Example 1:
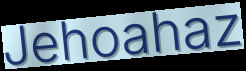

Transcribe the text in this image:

Jehoahaz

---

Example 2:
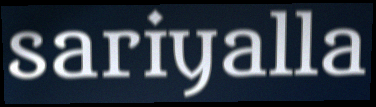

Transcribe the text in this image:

sariyalla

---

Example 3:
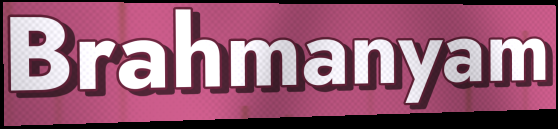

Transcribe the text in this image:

Brahmanyam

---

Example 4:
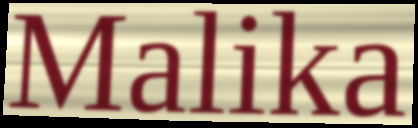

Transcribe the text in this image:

Malika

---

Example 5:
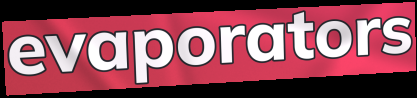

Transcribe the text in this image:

evaporators